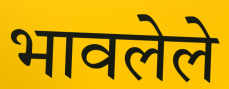
भावलेले